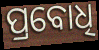
ପ୍ରବୋଧି